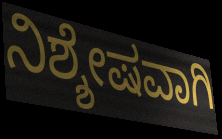
ನಿಶ್ಶೇಷವಾಗಿ